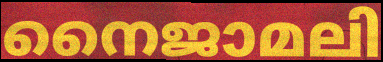
നൈജാമലി